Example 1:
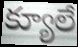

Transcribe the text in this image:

క్యూలే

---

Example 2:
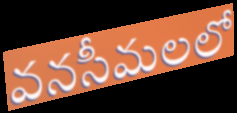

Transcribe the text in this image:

వనసీమలలో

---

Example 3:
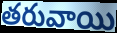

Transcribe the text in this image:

తరువాయి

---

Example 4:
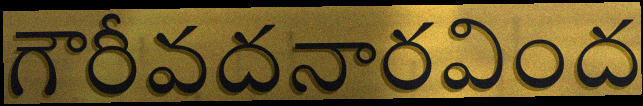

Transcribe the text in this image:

గౌరీవదనారవింద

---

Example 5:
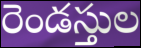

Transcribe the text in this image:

రెండస్తుల